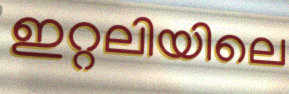
ഇറ്റലിയിലെ